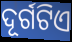
ଦୂର୍ଗଟିଏ